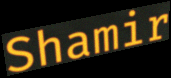
Shamir